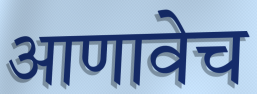
आणावेच